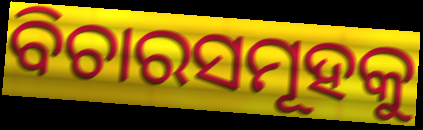
ବିଚାରସମୂହକୁ